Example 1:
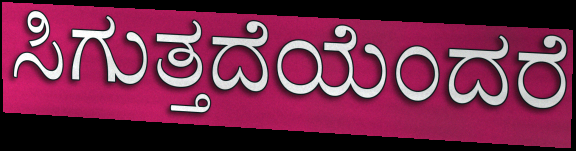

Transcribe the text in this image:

ಸಿಗುತ್ತದೆಯೆಂದರೆ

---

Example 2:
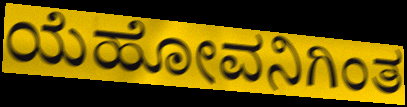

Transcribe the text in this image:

ಯೆಹೋವನಿಗಿಂತ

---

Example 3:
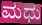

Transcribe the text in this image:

ಮಧು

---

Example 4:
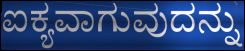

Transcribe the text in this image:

ಐಕ್ಯವಾಗುವುದನ್ನು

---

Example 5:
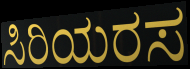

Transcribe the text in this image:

ಸಿರಿಯರಸ